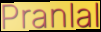
Pranlal